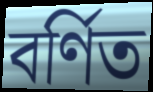
বৰ্ণিত